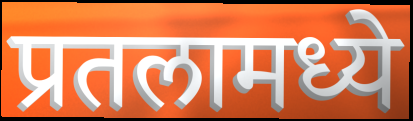
प्रतलामध्ये